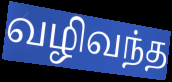
வழிவந்த